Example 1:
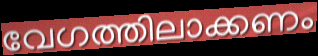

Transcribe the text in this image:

വേഗത്തിലാക്കണം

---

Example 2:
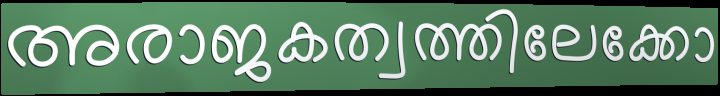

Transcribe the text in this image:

അരാജകത്വത്തിലേക്കോ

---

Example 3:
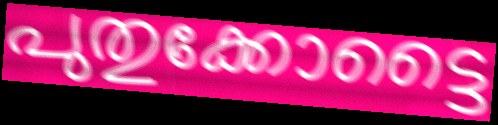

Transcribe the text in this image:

പുതുക്കോട്ടൈ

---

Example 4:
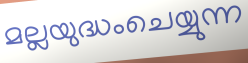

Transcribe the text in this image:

മല്ലയുദ്ധംചെയ്യുന്ന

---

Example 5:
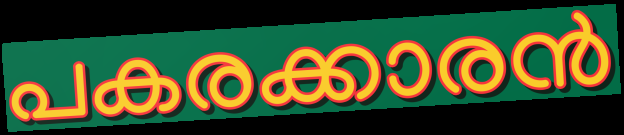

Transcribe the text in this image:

പകരക്കാരൻ